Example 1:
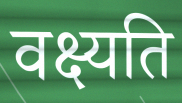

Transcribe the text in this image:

वक्ष्यति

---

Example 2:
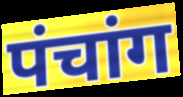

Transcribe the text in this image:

पंचांग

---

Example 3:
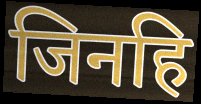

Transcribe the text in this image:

जिनहि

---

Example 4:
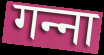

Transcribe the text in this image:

गन्‍ना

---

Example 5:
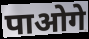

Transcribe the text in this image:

पाओगे